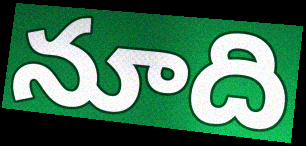
నూది